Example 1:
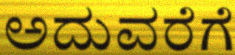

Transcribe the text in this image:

ಅದುವರೆಗೆ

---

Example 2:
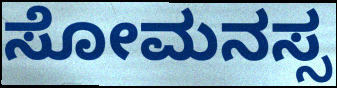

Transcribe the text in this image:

ಸೋಮನಸ್ಸ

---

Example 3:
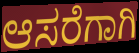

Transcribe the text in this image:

ಆಸರೆಗಾಗಿ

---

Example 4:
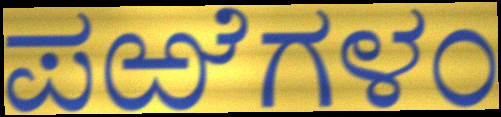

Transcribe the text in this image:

ಪಱೆಗಳಂ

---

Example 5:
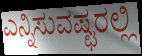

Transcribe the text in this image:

ಎನ್ನಿಸುವಷ್ಟರಲ್ಲಿ